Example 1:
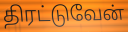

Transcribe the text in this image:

திரட்டுவேன்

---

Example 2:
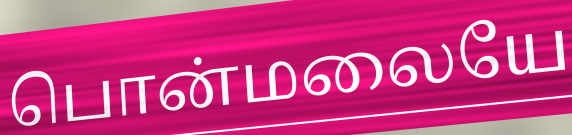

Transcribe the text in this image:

பொன்மலையே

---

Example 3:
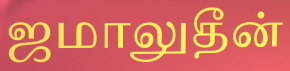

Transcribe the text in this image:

ஜமாலுதீன்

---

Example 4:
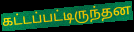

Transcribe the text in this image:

கட்டப்பட்டிருந்தன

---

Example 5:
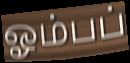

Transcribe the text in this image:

ஓம்பப்